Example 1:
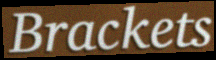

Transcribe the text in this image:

Brackets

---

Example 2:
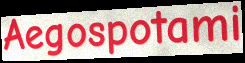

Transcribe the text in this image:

Aegospotami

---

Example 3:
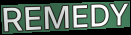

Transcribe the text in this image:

REMEDY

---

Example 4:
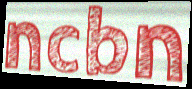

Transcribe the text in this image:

ncbn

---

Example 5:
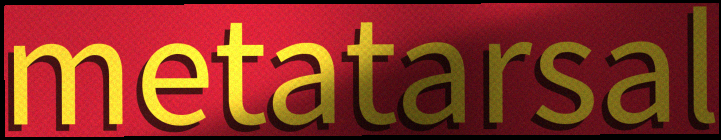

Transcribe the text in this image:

metatarsal